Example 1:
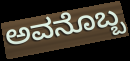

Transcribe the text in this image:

ಅವನೊಬ್ಬ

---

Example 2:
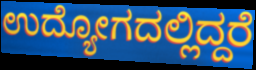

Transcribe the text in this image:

ಉದ್ಯೋಗದಲ್ಲಿದ್ದರೆ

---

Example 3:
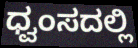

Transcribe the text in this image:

ಧ್ವಂಸದಲ್ಲಿ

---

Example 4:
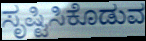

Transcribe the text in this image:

ಸೃಷ್ಟಿಸಿಕೊಡುವ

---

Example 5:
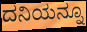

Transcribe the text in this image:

ದನಿಯನ್ನೂ